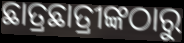
ଛାତ୍ରଛାତ୍ରୀଙ୍କଠାରୁ